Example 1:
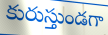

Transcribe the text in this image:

కురుస్తుండగా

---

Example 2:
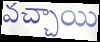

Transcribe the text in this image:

వచ్చాయి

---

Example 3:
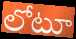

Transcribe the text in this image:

లోటూ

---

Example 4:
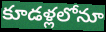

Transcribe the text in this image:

కూడళ్లలోనూ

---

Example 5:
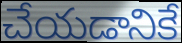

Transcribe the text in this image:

చేయడానికే